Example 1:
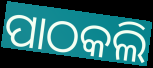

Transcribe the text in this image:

ପାଠକଲି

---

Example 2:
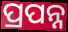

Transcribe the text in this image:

ପ୍ରପନ୍ନ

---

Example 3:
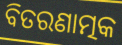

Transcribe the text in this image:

ବିତରଣାତ୍ମକ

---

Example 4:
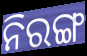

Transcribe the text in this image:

ନିରଙ୍ଗ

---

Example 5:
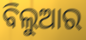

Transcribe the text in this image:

ବିଲୁଆର